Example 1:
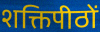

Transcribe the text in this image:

शक्तिपीठों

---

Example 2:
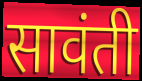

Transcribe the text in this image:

सावंती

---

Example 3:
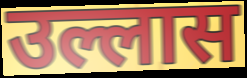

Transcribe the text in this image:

उल्लास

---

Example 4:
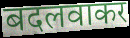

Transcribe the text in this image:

बदलवाकर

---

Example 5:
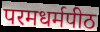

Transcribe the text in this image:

परमधर्मपीठ